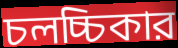
চলচ্চিকার